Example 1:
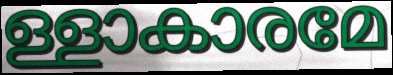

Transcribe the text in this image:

ള്ളാകാരമേ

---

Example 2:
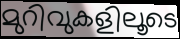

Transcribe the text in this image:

മുറിവുകളിലൂടെ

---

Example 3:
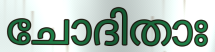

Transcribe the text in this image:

ചോദിതാഃ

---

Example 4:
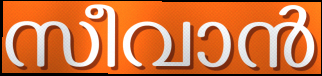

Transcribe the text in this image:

സീവാൻ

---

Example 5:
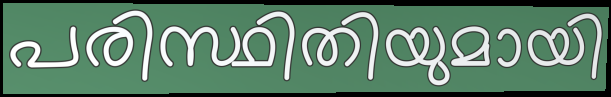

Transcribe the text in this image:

പരിസ്ഥിതിയുമായി